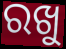
ରଖୁ